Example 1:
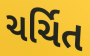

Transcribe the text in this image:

ચર્ચિત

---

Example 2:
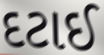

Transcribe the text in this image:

દટાઈ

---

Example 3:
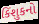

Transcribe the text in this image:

કિંશુકનો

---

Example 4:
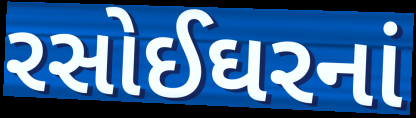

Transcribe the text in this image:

રસોઈઘરનાં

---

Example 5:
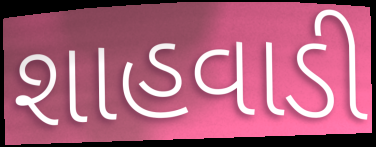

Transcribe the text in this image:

શાહવાડી